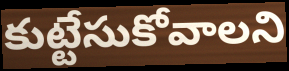
కుట్టేసుకోవాలని